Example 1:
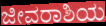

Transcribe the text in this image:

ಜೀವರಾಶಿಯ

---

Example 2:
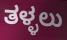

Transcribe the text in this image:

ತಳ್ಳಲು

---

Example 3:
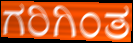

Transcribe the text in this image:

ಗರಿಗಿಂತ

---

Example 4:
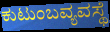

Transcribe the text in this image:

ಕುಟುಂಬವ್ಯವಸ್ಥೆ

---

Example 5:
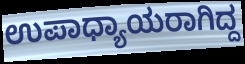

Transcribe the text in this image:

ಉಪಾಧ್ಯಾಯರಾಗಿದ್ದ